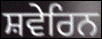
ਸ਼ਵੇਰਿਨ